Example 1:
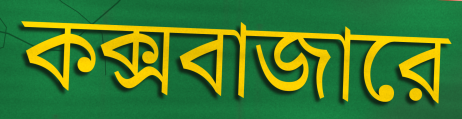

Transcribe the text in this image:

কক্সবাজারে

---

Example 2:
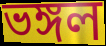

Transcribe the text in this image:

ভঙ্গল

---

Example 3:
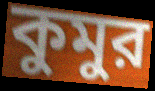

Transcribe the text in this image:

কুমুর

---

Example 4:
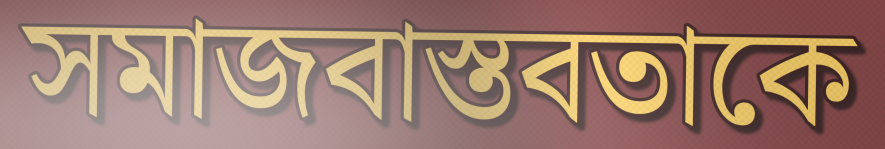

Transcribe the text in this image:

সমাজবাস্তবতাকে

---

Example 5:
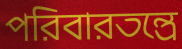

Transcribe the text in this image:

পরিবারতন্ত্রে